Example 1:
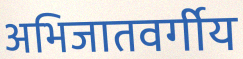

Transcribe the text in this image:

अभिजातवर्गीय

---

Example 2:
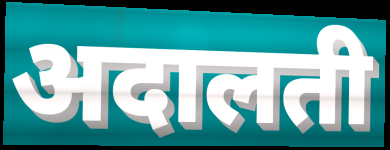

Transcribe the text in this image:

अदालती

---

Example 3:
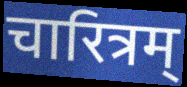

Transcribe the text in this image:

चारित्रम्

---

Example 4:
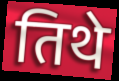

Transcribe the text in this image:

तिथे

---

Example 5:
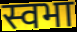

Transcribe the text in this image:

स्वभा